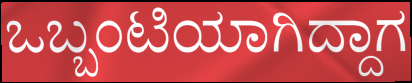
ಒಬ್ಬಂಟಿಯಾಗಿದ್ದಾಗ